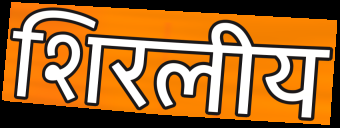
शिरलीय